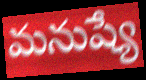
మనుష్యే